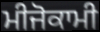
ਮੀਜੋਕਾਮੀ